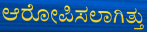
ಆರೋಪಿಸಲಾಗಿತ್ತು